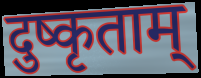
दुष्कृताम्